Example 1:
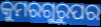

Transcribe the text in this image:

କୁମରଗୁରୁପର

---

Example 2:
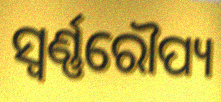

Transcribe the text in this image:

ସ୍ୱର୍ଣ୍ଣରୌପ୍ୟ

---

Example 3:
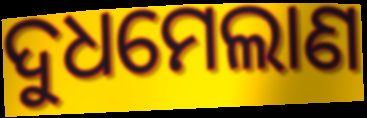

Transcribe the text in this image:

ଦୁଧମେଲାଣ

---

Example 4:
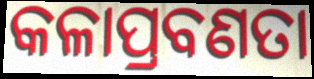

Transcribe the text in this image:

କଳାପ୍ରବଣତା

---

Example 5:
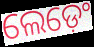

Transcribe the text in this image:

ଲେଡ଼େଂ